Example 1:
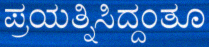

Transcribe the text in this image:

ಪ್ರಯತ್ನಿಸಿದ್ದಂತೂ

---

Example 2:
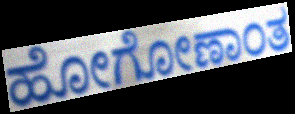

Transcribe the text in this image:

ಹೋಗೋಣಾಂತ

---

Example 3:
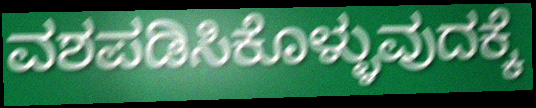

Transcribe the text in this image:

ವಶಪಡಿಸಿಕೊಳ್ಳುವುದಕ್ಕೆ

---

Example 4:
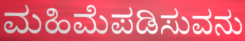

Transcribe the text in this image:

ಮಹಿಮೆಪಡಿಸುವನು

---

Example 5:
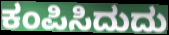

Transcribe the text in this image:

ಕಂಪಿಸಿದುದು